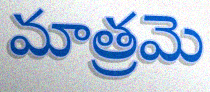
మాత్రమె